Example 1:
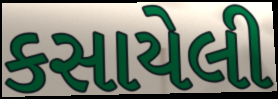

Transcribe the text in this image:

કસાયેલી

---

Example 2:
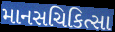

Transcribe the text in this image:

માનસચિકિત્સા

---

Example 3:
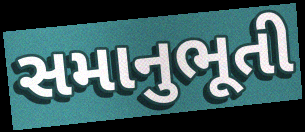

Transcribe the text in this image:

સમાનુભૂતી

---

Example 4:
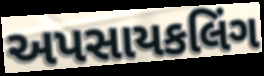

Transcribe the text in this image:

અપસાયકલિંગ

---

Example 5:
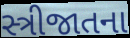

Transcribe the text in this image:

સ્ત્રીજાતના